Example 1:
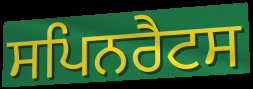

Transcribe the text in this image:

ਸਪਿਨਰੈਟਸ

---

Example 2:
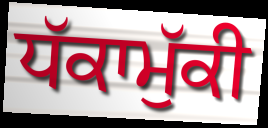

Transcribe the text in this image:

ਧੱਕਾਮੁੱਕੀ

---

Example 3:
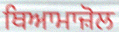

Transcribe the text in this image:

ਥਿਆਮਾਜ਼ੋਲ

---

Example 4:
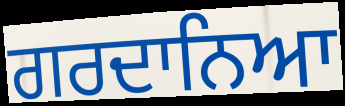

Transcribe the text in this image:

ਗਰਦਾਨਿਆ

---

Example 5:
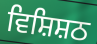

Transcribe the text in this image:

ਵਿਸ਼ਿਸ਼ਠ